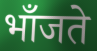
भाँजते